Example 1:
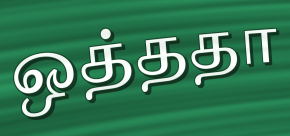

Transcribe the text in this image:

ஒத்ததா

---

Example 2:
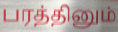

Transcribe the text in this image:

பரத்தினும்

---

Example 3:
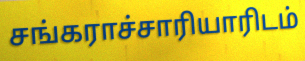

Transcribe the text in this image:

சங்கராச்சாரியாரிடம்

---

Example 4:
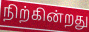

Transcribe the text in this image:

நிற்கின்றது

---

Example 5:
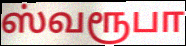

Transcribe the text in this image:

ஸ்வரூபா